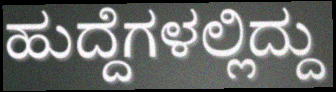
ಹುದ್ದೆಗಳಲ್ಲಿದ್ದು